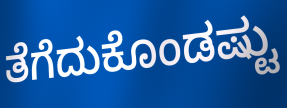
ತೆಗೆದುಕೊಂಡಷ್ಟು